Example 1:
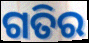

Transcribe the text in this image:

ଗତିର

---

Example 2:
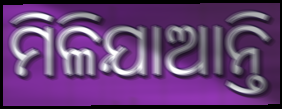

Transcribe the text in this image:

ମିଳିଯାଆନ୍ତି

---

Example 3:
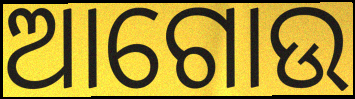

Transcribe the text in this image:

ଆଗୋଉ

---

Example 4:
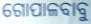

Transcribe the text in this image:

ଗୋପାଳବାବୁ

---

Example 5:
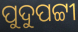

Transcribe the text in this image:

ପୁଦୁପଟ୍ଟୀ